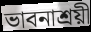
ভাবনাশ্রয়ী